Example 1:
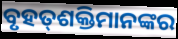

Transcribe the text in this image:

ବୃହତ୍‌ଶକ୍ତିମାନଙ୍କର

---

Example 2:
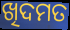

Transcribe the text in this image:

ଖିଦମତ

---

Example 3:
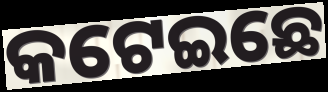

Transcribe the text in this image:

କଟେଇଛେ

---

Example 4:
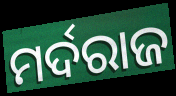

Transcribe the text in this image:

ମର୍ଦରାଜ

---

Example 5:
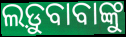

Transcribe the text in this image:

ଲଡ଼ୁବାବାଙ୍କୁ